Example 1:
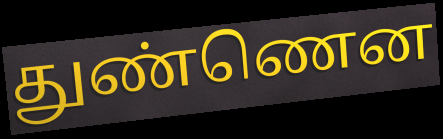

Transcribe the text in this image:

துண்ணென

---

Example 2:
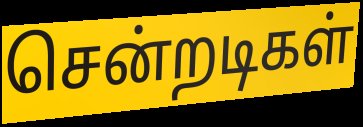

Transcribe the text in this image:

சென்றடிகள்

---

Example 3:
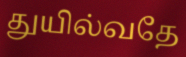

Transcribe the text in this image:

துயில்வதே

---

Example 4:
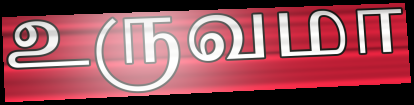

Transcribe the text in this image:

உருவமா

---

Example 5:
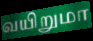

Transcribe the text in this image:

வயிறுமா